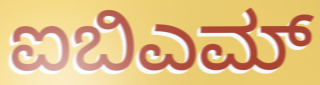
ಐಬಿಎಮ್